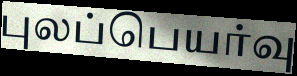
புலப்பெயர்வு